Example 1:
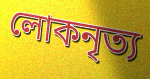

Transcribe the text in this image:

লোকনৃত্য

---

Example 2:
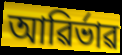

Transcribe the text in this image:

আৱিৰ্ভাৱ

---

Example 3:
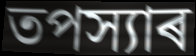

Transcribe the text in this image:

তপস্যাৰ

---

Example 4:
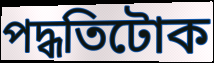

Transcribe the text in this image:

পদ্ধতিটোক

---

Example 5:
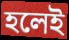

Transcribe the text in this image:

হলেই